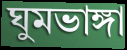
ঘুমভাঙ্গা